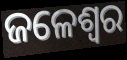
ଜଳେଶ୍ବର